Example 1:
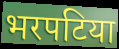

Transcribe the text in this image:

भरपटिया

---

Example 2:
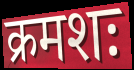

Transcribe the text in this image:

क्रमशः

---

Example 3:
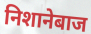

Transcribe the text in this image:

निशानेबाज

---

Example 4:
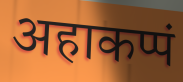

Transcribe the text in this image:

अहाकप्पं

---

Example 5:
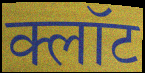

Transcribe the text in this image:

क्‍लॉट